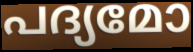
പദ്യമോ